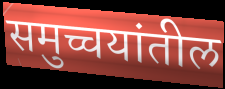
समुच्चयांतील